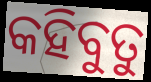
କହିବୁତୁ